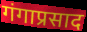
गंगाप्रसाद